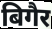
बिगैर